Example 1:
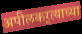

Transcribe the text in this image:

अपीलकर्त्याच्या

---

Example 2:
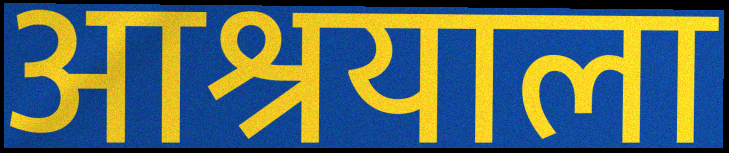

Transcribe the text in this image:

आश्रयाला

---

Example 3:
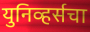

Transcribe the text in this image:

युनिव्हर्सचा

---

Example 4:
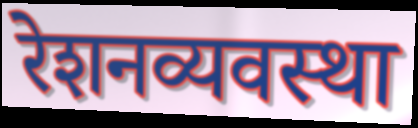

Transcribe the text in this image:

रेशनव्यवस्था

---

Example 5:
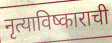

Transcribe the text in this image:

नृत्याविष्काराची